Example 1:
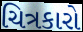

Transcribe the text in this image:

ચિત્રકારો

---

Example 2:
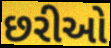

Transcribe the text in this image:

છરીઓ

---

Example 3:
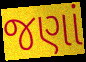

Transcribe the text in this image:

જણાં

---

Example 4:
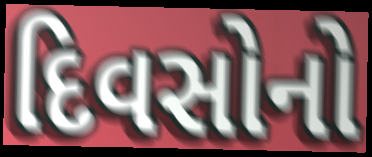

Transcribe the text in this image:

દિવસોનો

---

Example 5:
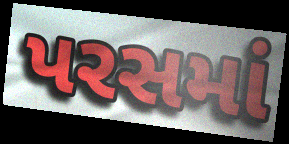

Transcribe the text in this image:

પરસમાં